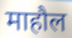
माहौल